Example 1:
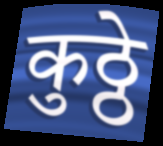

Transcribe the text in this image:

कुठ्ठे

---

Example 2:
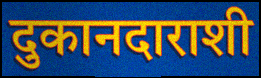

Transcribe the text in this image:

दुकानदाराशी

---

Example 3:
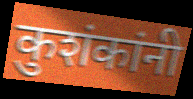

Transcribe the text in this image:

कुशंकांनी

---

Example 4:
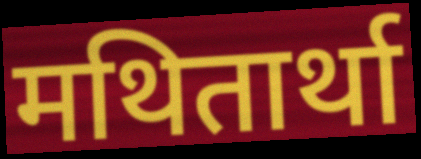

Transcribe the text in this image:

मथितार्था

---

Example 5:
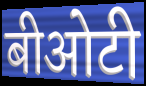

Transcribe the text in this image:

बीओटी